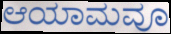
ಆಯಾಮವೂ